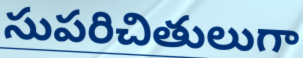
సుపరిచితులుగా